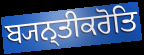
ਬ੍ਯਨ੍ਤੀਕਰੋਤਿ